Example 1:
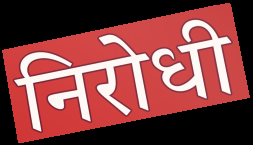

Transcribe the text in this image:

निरोधी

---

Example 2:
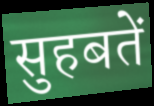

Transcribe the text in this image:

सुहबतें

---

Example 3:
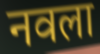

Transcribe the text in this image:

नवला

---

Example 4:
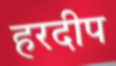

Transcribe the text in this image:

हरदीप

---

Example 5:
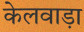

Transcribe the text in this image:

केलवाड़ा